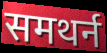
समथर्न